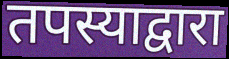
तपस्याद्वारा